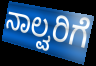
ನಾಲ್ವರಿಗೆ